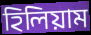
হিলিয়াম